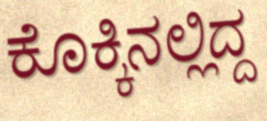
ಕೊಕ್ಕಿನಲ್ಲಿದ್ದ